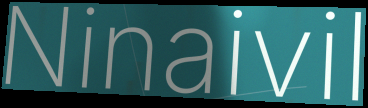
Ninaivil